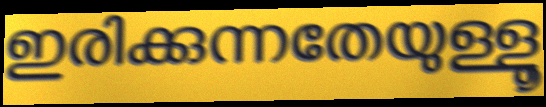
ഇരിക്കുന്നതേയുള്ളൂ